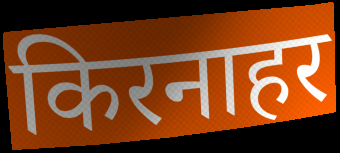
किरनाहर